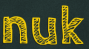
nuk